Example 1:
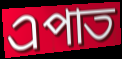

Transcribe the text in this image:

এপাত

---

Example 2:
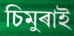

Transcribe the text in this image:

চিমুৰাই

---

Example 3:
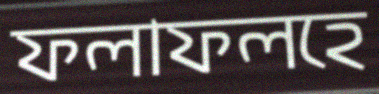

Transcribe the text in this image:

ফলাফলহে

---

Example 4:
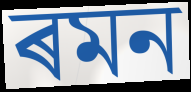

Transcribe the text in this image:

ৰমন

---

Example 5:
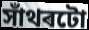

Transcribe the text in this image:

সাঁথৰটো